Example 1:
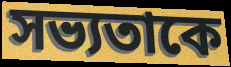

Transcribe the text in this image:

সভ্যতাকে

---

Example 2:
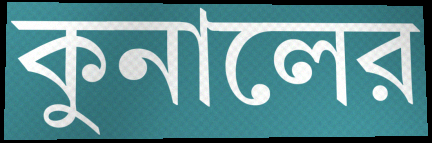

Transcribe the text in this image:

কুনালের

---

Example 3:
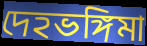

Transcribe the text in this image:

দেহভঙ্গিমা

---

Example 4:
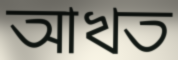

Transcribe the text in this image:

আখত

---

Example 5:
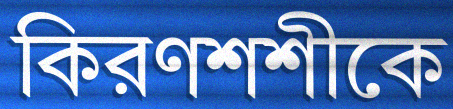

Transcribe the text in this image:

কিরণশশীকে